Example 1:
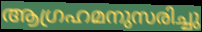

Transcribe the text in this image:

ആഗ്രഹമനുസരിച്ചു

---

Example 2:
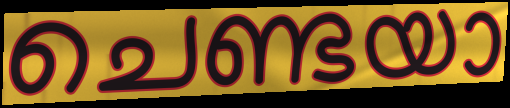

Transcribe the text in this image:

ചെണ്ടയാ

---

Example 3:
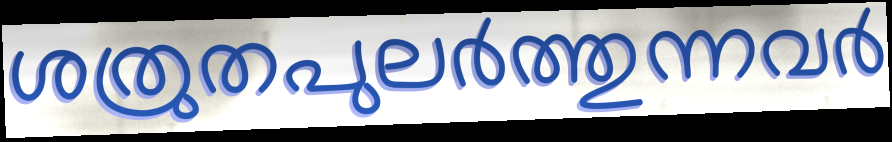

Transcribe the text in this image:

ശത്രുതപുലർത്തുന്നവർ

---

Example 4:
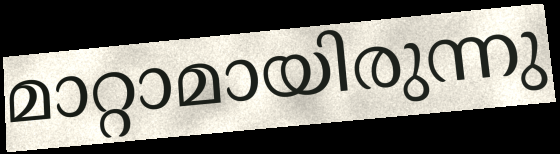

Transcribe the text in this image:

മാറ്റാമായിരുന്നു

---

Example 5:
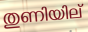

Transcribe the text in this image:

തുണിയില്